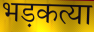
भड़कत्या